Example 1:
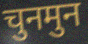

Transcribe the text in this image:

चुनमुन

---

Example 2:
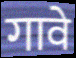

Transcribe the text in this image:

गावे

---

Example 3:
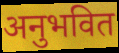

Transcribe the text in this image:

अनुभवित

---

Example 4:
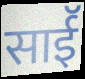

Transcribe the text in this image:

साईॅ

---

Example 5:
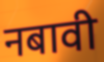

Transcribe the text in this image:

नबावी